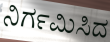
ನಿರ್ಗಮಿಸಿದ